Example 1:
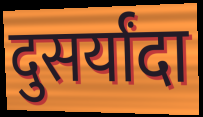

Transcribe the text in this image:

दुसर्यांदा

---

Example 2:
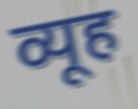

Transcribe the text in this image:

व्यूह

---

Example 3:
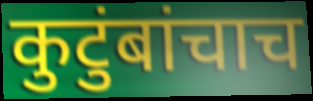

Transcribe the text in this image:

कुटुंबांचाच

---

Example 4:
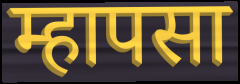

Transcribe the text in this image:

म्हापसा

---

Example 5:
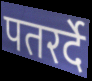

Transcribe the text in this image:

पतरर्दे